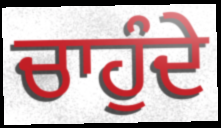
ਚਾਹੁੰਦੇ